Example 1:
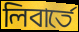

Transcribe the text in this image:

লিবার্তে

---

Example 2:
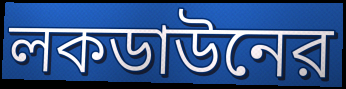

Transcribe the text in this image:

লকডাউনের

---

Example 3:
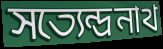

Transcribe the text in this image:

সত্যেন্দ্রনাথ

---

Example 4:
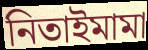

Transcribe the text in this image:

নিতাইমামা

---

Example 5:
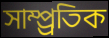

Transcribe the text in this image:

সাম্প্র্রতিক